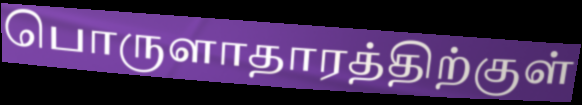
பொருளாதாரத்திற்குள்